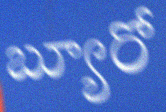
బ్యూరో